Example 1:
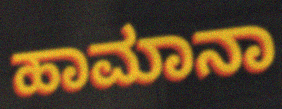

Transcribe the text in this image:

ಹಾಮಾನಾ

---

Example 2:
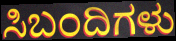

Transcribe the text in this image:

ಸಿಬಂದಿಗಳು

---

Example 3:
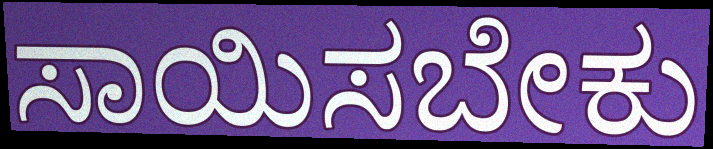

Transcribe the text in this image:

ಸಾಯಿಸಬೇಕು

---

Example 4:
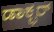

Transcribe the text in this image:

ಡಾಕ್ಟರ್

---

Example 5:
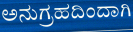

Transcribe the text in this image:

ಅನುಗ್ರಹದಿಂದಾಗಿ